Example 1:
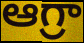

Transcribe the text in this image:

ఆగ్రా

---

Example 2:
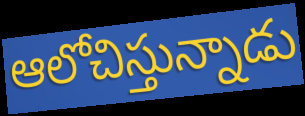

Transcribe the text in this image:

ఆలోచిస్తున్నాడు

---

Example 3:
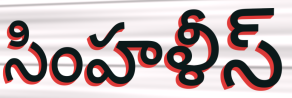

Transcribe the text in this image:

సింహళీస్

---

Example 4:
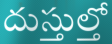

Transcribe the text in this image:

దుస్తుల్తో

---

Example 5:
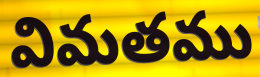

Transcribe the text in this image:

విమతము